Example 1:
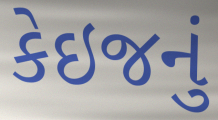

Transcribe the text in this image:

કેઇજનું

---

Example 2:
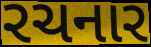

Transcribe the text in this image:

રચનાર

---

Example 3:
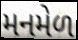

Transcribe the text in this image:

મનમેળ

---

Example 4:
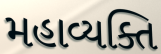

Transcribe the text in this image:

મહાવ્યક્તિ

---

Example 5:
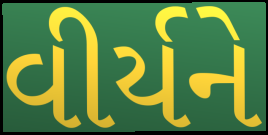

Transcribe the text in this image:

વીર્યને